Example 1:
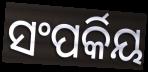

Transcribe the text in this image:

ସଂପର୍କିୟ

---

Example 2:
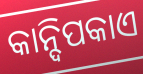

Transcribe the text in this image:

କାନ୍ଦିପକାଏ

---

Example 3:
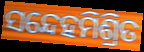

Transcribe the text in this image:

ସନ୍ଦେହମିଶ୍ରିତ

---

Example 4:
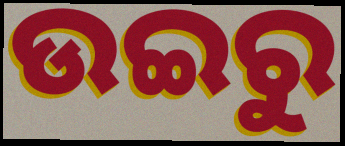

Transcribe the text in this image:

ଉଇରୁ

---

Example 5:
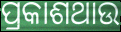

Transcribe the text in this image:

ପ୍ରକାଶଥାଉ